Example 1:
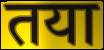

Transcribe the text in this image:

तया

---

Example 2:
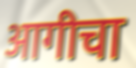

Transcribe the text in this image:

आगीचा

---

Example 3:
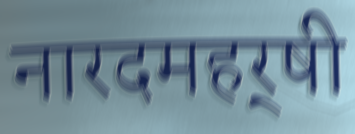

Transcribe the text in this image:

नारदमहर्षी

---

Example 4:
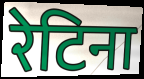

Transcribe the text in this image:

रेटिना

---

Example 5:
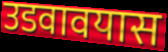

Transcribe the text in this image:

उडवावयास